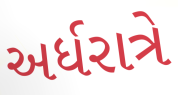
અર્ધરાત્રે